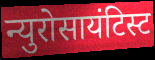
न्युरोसायंटिस्ट